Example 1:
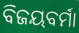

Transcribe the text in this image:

ବିଜୟବର୍ମା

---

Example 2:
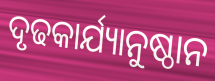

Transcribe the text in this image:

ଦୃଢକାର୍ଯ୍ୟାନୁଷ୍ଠାନ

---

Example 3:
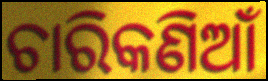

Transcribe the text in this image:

ଚାରିକଣିଆଁ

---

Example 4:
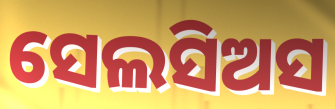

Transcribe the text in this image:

ସେଲସିଅସ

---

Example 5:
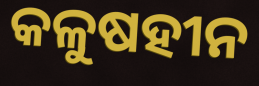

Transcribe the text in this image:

କଳୁଷହୀନ